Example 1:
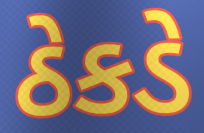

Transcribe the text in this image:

ઠેકડે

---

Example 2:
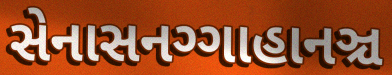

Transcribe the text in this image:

સેનાસનગ્ગાહાનઞ્ચ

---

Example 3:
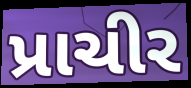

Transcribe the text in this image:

પ્રાચીર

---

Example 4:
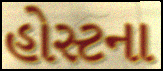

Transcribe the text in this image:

હોસ્ટના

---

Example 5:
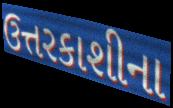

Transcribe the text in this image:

ઉત્તરકાશીના